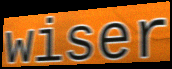
wiser